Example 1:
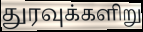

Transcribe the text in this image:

துரவுக்களிறு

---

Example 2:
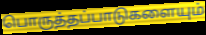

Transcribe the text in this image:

பொருத்தப்பாடுகளையும்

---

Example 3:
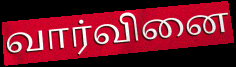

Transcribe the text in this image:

வார்வினை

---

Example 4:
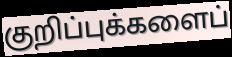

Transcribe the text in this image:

குறிப்புக்களைப்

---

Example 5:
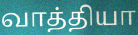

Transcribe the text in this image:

வாத்தியா